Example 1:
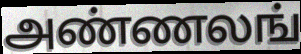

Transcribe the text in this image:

அண்ணலங்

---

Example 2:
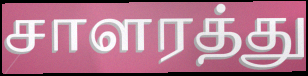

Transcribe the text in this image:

சாளரத்து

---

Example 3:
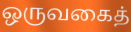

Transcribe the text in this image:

ஒருவகைத்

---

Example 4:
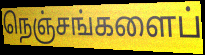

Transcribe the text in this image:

நெஞ்சங்களைப்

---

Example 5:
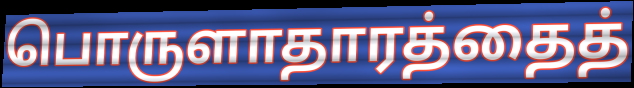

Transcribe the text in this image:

பொருளாதாரத்தைத்